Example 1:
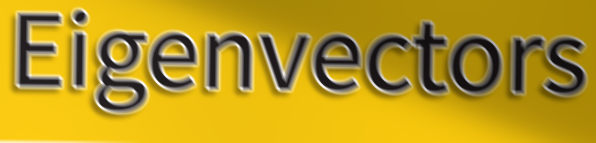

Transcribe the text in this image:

Eigenvectors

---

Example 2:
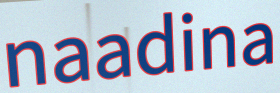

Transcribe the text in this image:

naadina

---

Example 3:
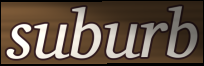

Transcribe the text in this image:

suburb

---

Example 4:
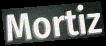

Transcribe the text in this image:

Mortiz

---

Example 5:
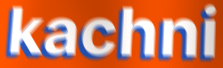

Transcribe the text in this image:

kachni